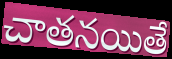
చాతనయితే